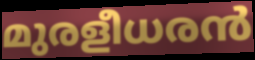
മുരളീധരൻ